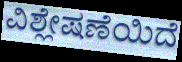
ವಿಶ್ಲೇಷಣೆಯಿದೆ